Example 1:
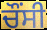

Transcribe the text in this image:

ਚੌਂਸੀ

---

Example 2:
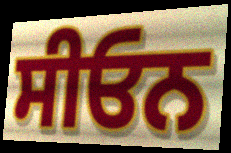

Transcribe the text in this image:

ਸੀਓਨ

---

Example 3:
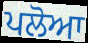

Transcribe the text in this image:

ਪਲੋਆ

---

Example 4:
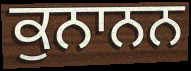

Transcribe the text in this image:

ਕੁਨਾਨਨ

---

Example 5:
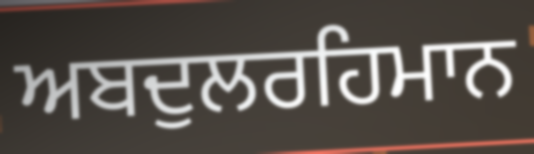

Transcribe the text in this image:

ਅਬਦੁਲਰਹਿਮਾਨ